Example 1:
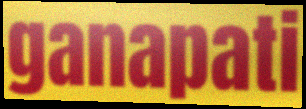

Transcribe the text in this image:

ganapati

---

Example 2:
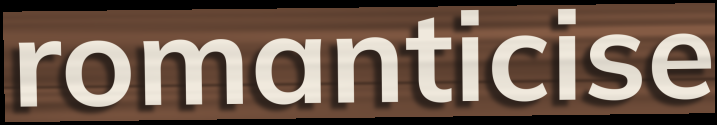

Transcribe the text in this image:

romanticise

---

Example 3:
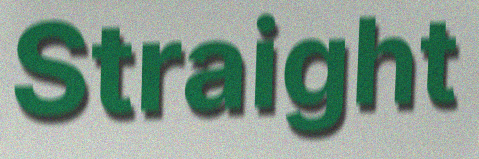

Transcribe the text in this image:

Straight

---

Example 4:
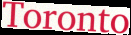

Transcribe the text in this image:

Toronto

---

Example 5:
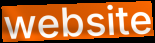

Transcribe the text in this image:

website